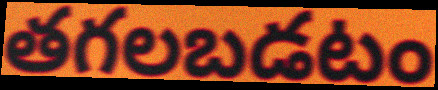
తగలబడటం